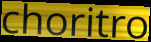
choritro